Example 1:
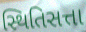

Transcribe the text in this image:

સ્થિતિસત્તા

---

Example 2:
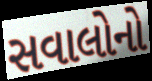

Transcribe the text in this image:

સવાલોનો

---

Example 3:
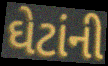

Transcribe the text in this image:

ઘેટાંની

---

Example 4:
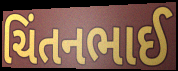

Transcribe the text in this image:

ચિંતનભાઈ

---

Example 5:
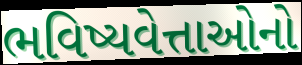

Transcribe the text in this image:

ભવિષ્યવેત્તાઓનો